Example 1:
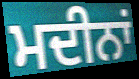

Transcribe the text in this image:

ਮਦੀਨਾਂ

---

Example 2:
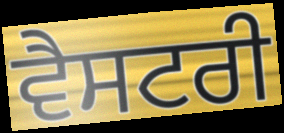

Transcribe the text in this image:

ਵੈਸਟਰੀ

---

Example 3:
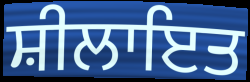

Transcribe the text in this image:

ਸ਼ੀਲਾਇਤ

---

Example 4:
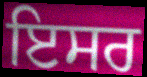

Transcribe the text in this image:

ਇਸਰ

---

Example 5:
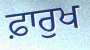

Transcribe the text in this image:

ਫ਼ਾਰੁਖ